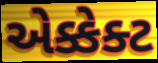
એક્કેક્ટ